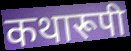
कथारूपी